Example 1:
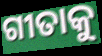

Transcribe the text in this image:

ଗୀତାକୁ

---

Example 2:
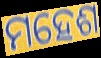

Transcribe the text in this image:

ମହେଶ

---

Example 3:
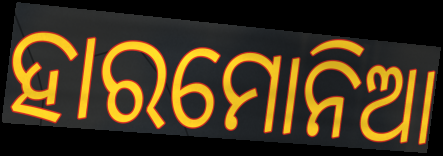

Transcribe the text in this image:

ହାରମୋନିଆ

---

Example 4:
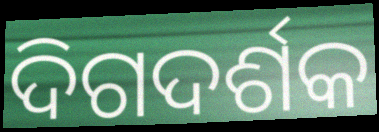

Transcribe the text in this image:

ଦିଗଦର୍ଶକ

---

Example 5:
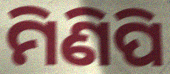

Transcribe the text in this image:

ମିଣିପି